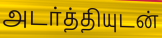
அடர்த்தியுடன்